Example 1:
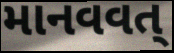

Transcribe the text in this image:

માનવવત્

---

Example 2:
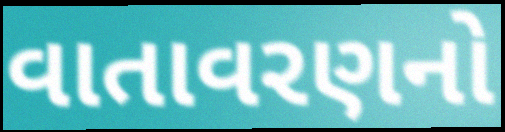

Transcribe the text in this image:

વાતાવરણનો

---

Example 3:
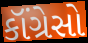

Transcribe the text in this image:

કૉંગ્રેસો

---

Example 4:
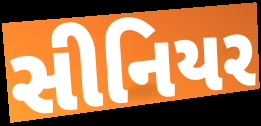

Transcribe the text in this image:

સીનિયર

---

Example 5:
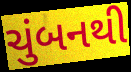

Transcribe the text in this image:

ચુંબનથી